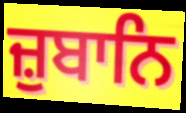
ਜ਼ੁਬਾਨਿ